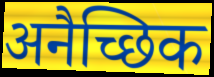
अनैच्छिक